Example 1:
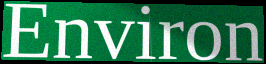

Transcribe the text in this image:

Environ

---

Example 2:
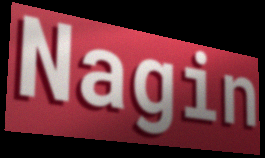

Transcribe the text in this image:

Nagin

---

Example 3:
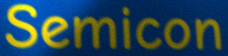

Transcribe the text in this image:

Semicon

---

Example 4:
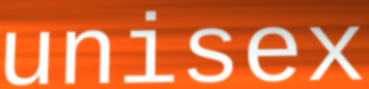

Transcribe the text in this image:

unisex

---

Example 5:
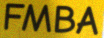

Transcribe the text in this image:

FMBA